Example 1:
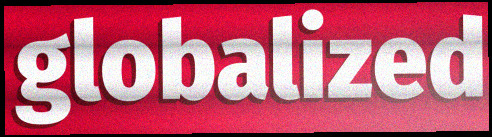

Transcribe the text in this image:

globalized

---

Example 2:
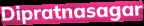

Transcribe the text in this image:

Dipratnasagar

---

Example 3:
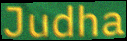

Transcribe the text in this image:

Judha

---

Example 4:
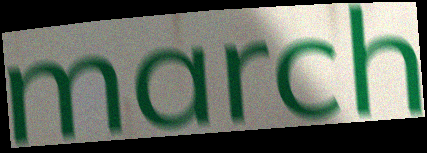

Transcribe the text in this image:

march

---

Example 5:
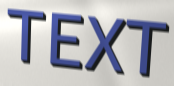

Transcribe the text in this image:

TEXT